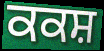
ਕਕਸ਼